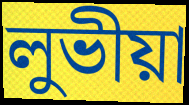
লুভীয়া